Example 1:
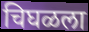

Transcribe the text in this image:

चिघळला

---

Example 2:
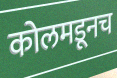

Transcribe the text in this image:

कोलमडूनच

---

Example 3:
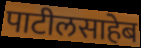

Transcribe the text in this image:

पाटीलसाहेब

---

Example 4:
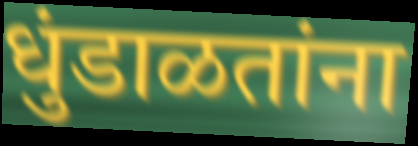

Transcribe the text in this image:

धुंडाळतांना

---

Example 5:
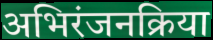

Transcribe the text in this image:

अभिरंजनक्रिया